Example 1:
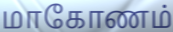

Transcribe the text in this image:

மாகோணம்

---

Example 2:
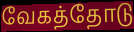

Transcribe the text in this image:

வேகத்தோடு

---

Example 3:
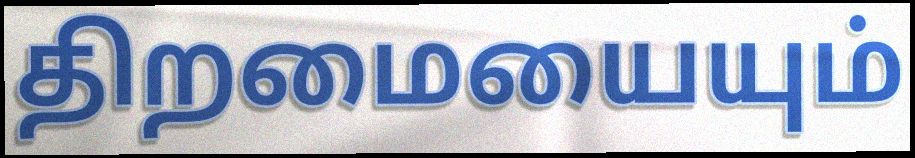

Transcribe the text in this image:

திறமையையும்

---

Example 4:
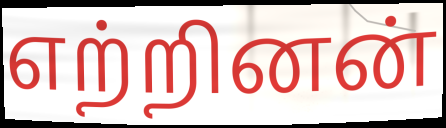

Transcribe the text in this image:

எற்றினன்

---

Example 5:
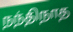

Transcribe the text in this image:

நந்திநாத